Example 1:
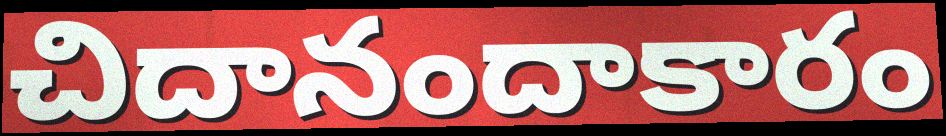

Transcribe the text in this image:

చిదానందాకారం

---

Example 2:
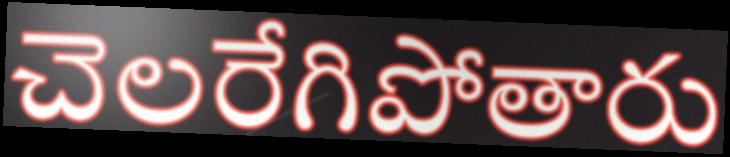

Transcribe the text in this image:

చెలరేగిపోతారు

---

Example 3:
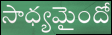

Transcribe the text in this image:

సాధ్యమైందో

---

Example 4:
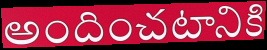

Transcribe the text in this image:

అందించటానికి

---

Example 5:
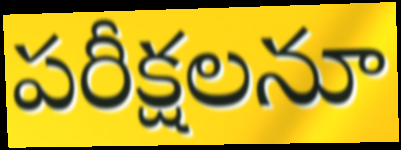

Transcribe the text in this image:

పరీక్షలనూ